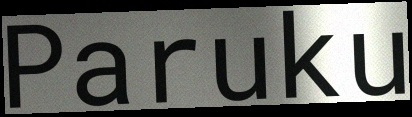
Paruku